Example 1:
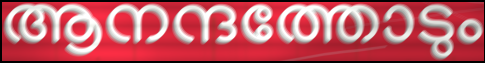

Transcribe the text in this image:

ആനന്ദത്തോടും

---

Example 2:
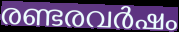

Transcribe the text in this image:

രണ്ടരവർഷം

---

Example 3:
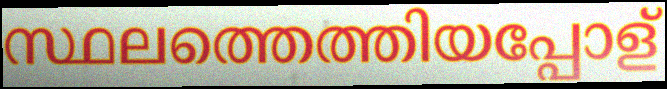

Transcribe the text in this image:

സ്ഥലത്തെത്തിയപ്പോള്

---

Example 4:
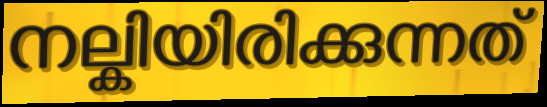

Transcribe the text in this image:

നല്കിയിരിക്കുന്നത്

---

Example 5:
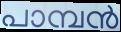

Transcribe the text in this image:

പാമ്പൻ